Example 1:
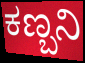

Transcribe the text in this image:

ಕಣ್ಬನಿ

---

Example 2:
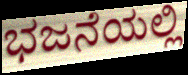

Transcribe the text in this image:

ಭಜನೆಯಲ್ಲಿ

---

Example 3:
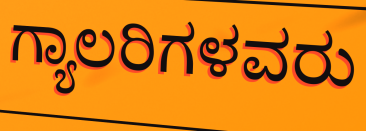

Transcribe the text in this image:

ಗ್ಯಾಲರಿಗಳವರು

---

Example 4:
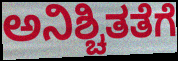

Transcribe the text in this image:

ಅನಿಶ್ಚಿತತೆಗೆ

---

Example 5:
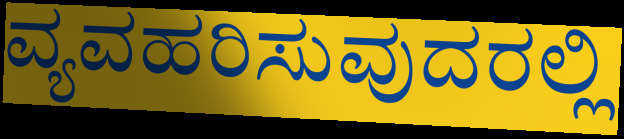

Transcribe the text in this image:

ವ್ಯವಹರಿಸುವುದರಲ್ಲಿ